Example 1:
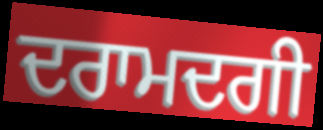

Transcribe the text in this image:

ਦਰਾਮਦਗੀ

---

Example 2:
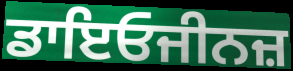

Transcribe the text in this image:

ਡਾਇਓਜੀਨਜ਼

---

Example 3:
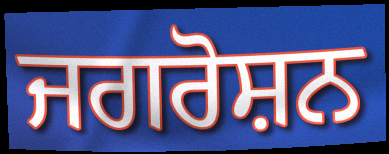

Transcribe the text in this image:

ਜਗਰੋਸ਼ਨ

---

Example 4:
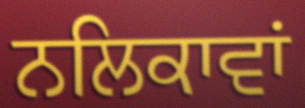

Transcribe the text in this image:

ਨਲਿਕਾਵਾਂ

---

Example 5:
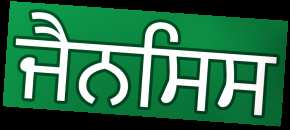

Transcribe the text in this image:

ਜੈਨਸਿਸ